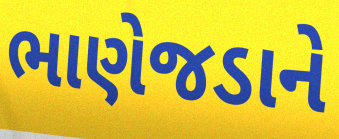
ભાણેજડાને